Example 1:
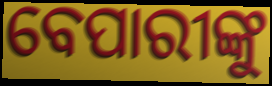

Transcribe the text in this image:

ବେପାରୀଙ୍କୁ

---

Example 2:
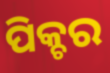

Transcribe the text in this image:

ପିକ୍ଚର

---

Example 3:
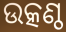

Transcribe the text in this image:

ଉତ୍କଣ୍ଠ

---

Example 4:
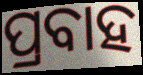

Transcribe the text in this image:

ପ୍ରବାହ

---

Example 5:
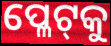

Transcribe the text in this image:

ପ୍ଳେଟ୍‌କୁ